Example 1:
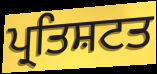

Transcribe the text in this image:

ਪ੍ਰਤਿਸ਼ਟਤ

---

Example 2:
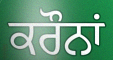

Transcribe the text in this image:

ਕਰੌਨਾਂ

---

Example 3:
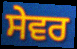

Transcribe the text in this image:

ਸੇਵਰ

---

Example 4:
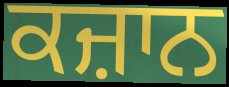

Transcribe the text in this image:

ਕਜ਼ਾਨ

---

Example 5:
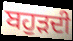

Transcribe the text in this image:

ਬਹੁੜਦੀ